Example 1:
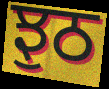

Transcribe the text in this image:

ਝੁਠ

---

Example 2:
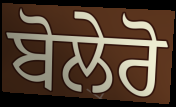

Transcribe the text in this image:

ਬੋਲੇਰੋ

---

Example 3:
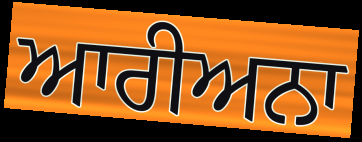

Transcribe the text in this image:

ਆਰੀਅਨਾ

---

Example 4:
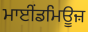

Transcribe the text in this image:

ਮਾਈਂਡਮਿਊਜ਼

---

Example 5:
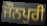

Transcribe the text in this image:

ਜੌਨਪੁਰੀ